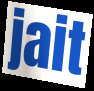
jait